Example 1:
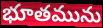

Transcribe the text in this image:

భూతమును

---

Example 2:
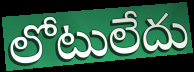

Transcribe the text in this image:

లోటులేదు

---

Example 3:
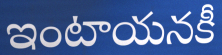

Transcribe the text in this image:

ఇంటాయనకీ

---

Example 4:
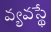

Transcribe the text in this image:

వ్యవస్థే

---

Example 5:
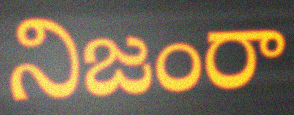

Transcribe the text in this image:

నిజంరా